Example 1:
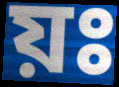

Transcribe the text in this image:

য়ঃ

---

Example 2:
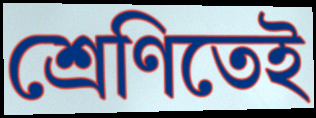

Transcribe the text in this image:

শ্রেণিতেই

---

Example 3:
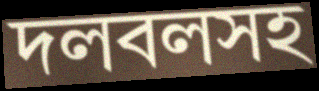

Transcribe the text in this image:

দলবলসহ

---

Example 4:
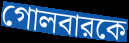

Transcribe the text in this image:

গোলবারকে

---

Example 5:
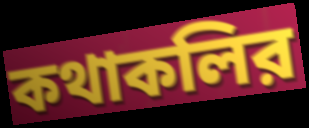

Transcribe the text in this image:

কথাকলির